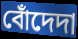
বোঁদেদা